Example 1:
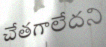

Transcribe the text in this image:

చేతగాలేదని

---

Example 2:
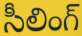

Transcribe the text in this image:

సీలింగ్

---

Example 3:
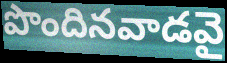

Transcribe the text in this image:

పొందినవాడవై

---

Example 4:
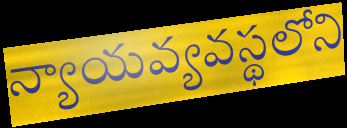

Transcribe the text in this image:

న్యాయవ్యవస్థలోని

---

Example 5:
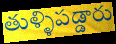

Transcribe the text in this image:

తుళ్ళిపడ్డారు